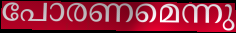
പോരണമെന്നു